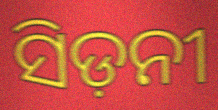
ସିଡ଼ନୀ